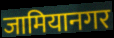
जामियानगर